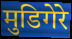
मुडिगेरे